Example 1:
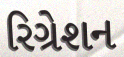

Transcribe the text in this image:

રિગ્રેશન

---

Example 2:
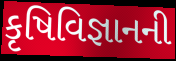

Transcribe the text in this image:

કૃષિવિજ્ઞાનની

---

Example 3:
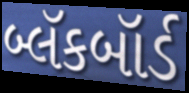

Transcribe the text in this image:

બ્લૅકબૉર્ડ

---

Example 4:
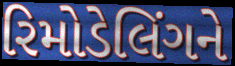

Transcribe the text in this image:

રિમોડેલિંગને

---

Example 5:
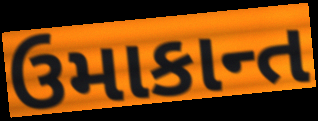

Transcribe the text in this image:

ઉમાકાન્ત